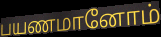
பயணமானோம்